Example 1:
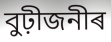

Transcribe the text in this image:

বুঢ়ীজনীৰ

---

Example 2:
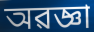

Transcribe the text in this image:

অৱজ্ঞা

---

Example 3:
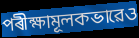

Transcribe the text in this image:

পৰীক্ষামূলকভাৱেও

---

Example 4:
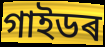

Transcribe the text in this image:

গাইডৰ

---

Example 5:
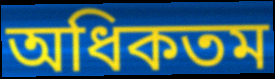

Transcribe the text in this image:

অধিকতম